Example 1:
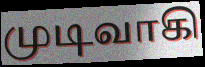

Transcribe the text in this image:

முடிவாகி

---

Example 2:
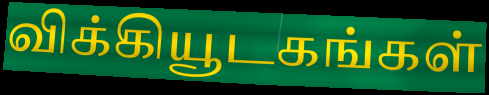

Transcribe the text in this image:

விக்கியூடகங்கள்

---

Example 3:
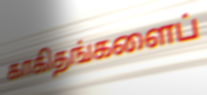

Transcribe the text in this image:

காகிதங்களைப்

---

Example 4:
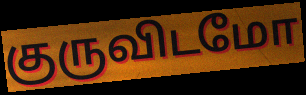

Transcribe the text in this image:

குருவிடமோ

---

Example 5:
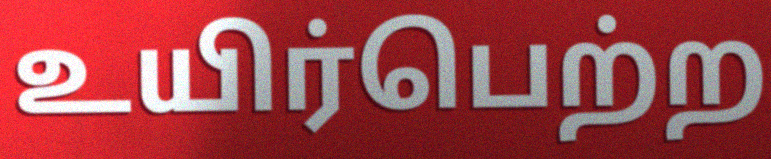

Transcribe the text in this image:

உயிர்பெற்ற